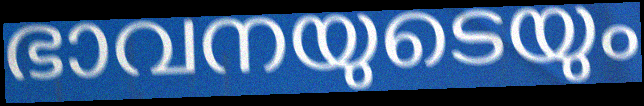
ഭാവനയുടെയും